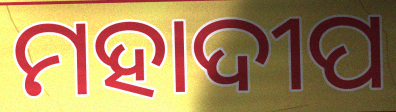
ମହାଦୀପ